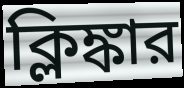
ক্লিঙ্কার